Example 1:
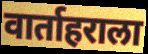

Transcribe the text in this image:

वार्ताहराला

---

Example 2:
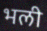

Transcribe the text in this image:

भली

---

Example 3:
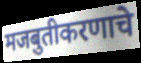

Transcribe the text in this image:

मजबुतीकरणाचे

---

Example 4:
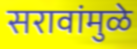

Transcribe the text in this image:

सरावांमुळे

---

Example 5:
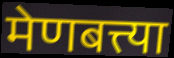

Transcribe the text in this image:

मेणबत्त्या